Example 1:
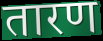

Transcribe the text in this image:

तारण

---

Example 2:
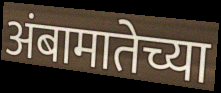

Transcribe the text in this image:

अंबामातेच्या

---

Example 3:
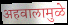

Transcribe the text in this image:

अहवालामुळे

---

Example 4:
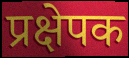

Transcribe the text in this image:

प्रक्षेपक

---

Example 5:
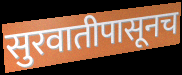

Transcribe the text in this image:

सुरवातीपासूनच